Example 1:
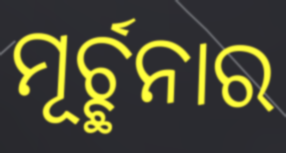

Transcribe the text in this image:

ମୂର୍ଚ୍ଛନାର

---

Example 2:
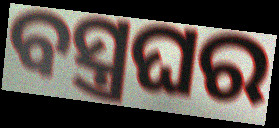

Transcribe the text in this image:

ବସ୍ତ୍ରଘର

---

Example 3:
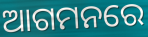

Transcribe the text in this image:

ଆଗମନରେ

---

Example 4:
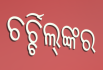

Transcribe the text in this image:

ଚର୍ଚ୍ଚିଲ୍‌ଙ୍କର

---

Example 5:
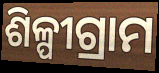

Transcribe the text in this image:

ଶିଳ୍ପୀଗ୍ରାମ